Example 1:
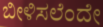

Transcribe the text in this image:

ಬೀಳಿಸಲೆಂದೇ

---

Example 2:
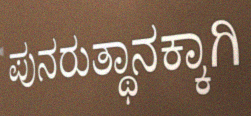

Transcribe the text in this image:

ಪುನರುತ್ಥಾನಕ್ಕಾಗಿ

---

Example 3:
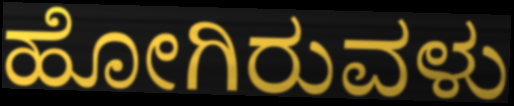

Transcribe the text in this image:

ಹೋಗಿರುವಳು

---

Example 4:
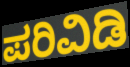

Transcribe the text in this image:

ಪರಿವಿಡಿ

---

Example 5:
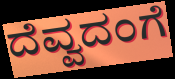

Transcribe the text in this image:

ದೆವ್ವದಂಗೆ